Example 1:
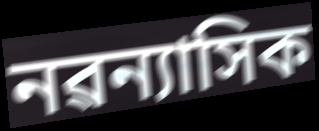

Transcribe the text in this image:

নৱন্যাসিক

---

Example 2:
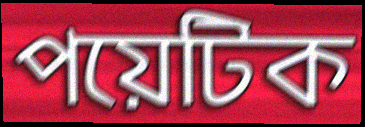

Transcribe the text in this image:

পয়েটিক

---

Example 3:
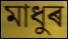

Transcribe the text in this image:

মাধুৰ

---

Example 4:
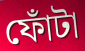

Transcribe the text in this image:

ফোঁটা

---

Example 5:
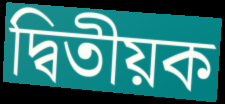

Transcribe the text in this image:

দ্বিতীয়ক